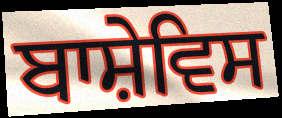
ਬਾਸ਼ੇਵਿਸ